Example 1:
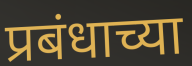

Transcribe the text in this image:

प्रबंधाच्या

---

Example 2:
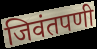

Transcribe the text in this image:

जिवंतपणी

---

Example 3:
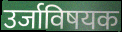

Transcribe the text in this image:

उर्जाविषयक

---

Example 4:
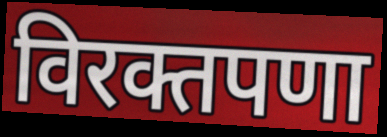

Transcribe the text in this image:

विरक्तपणा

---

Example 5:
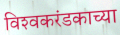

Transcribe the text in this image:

विश्वकरंडकाच्या